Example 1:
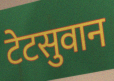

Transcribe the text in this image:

टेटसुवान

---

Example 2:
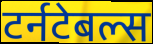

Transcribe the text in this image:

टर्नटेबल्स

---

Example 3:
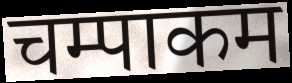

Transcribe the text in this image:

चम्पाकम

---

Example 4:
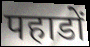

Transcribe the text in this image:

पहाडों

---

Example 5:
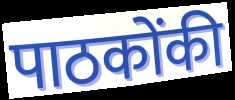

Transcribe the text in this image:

पाठकोंकी